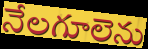
నేలగూలెను